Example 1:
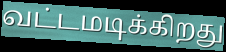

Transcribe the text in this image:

வட்டமடிக்கிறது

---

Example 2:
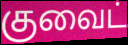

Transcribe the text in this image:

குவைட்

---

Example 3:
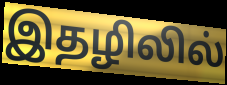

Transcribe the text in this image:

இதழிலில்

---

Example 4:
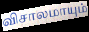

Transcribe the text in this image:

விசாலமாயும்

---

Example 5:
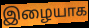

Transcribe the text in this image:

இழையாக